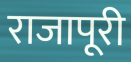
राजापूरी